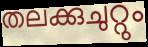
തലക്കുചുറ്റും